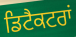
ਡਿਟੈਕਟਰਾਂ